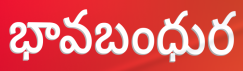
భావబంధుర